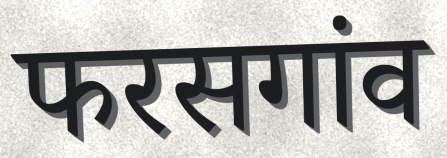
फरसगांव